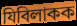
যিবিলাকক